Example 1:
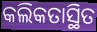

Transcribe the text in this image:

କଲିକତାସ୍ଥିତ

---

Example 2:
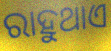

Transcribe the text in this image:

ରାହୁଥାଏ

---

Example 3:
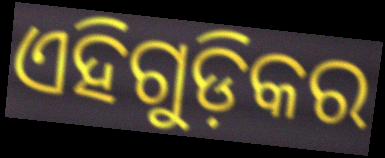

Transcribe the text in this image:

ଏହିଗୁଡ଼ିକର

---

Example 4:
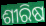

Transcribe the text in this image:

ଶୀରିଷ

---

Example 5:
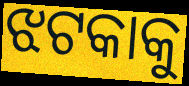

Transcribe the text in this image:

ଝଟକାକୁ